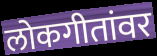
लोकगीतांवर